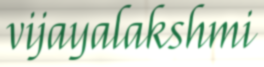
vijayalakshmi